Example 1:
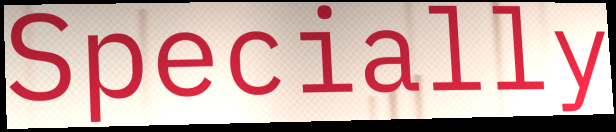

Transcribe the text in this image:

Specially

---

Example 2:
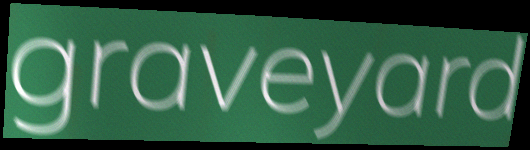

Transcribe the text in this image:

graveyard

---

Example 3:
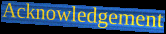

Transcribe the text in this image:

Acknowledgement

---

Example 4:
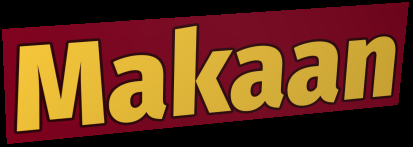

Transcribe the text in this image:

Makaan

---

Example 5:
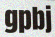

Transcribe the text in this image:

gpbj